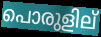
പൊരുളില്